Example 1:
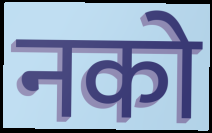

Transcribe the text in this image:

नको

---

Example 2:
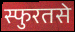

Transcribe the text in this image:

स्फुरतसे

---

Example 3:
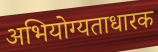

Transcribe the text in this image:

अभियोग्यताधारक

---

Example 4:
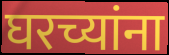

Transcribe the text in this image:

घरच्‍यांना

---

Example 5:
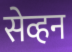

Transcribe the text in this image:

सेव्हन